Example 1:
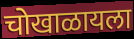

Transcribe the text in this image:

चोखाळायला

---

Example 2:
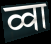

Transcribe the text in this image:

व्वा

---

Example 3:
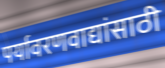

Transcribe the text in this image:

पर्यावरणवाद्यांसाठी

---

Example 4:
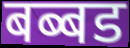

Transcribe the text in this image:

बब्बड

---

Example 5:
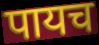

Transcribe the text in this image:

पायच